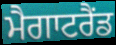
ਮੈਗਾਟਰੈਂਡ